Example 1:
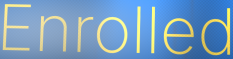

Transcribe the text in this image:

Enrolled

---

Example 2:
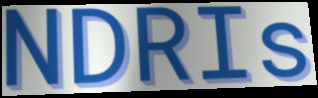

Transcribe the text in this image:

NDRIs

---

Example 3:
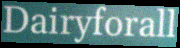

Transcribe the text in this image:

Dairyforall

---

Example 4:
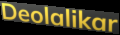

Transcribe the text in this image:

Deolalikar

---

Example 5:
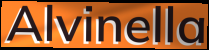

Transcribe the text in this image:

Alvinella